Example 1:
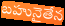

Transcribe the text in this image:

బహునైతేన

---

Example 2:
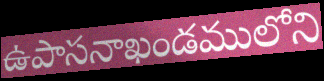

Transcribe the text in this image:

ఉపాసనాఖండములోని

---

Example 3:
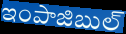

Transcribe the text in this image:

ఇంపాజిబుల్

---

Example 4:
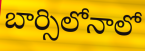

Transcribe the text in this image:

బార్సిలోనాలో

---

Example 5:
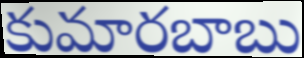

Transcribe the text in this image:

కుమారబాబు